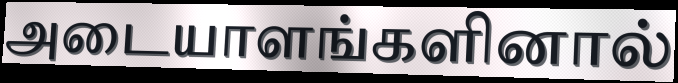
அடையாளங்களினால்